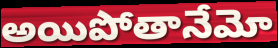
అయిపోతానేమో